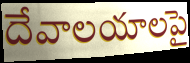
దేవాలయాలపై